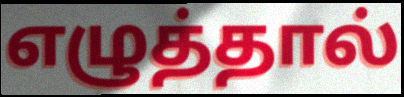
எழுத்தால்